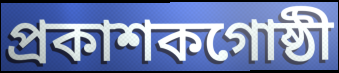
প্রকাশকগোষ্ঠী